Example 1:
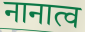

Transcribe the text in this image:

नानात्व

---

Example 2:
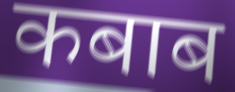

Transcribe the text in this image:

कबाब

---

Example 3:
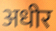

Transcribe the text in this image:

अधीर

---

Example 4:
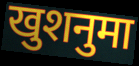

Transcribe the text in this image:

खुशनुमा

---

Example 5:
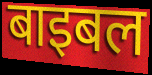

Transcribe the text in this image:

बाइबल